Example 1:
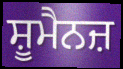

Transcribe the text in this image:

ਸ਼ੂਮੈਨਜ਼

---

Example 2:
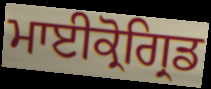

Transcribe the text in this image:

ਮਾਈਕ੍ਰੋਗ੍ਰਿਡ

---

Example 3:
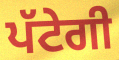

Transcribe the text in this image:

ਪੱਟੇਗੀ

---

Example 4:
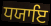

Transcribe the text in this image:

ਧਯਾਇ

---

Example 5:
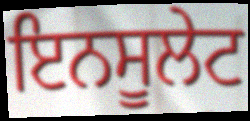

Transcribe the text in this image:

ਇਨਸੂਲੇਟ